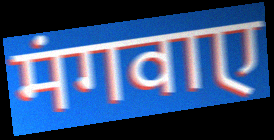
मंगवाए